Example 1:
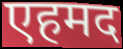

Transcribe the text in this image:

एहमद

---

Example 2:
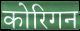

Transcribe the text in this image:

कोरिगन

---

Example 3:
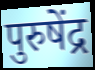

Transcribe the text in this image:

पुरुषेंद्र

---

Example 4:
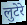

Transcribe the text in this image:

लुटेरे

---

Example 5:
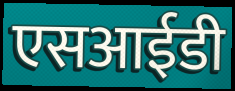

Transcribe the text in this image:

एसआईडी